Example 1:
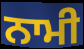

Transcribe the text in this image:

ਨਾਮੀ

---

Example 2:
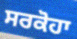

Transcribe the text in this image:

ਸਰਕੋਹਾ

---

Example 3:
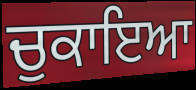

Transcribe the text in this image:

ਚੁਕਾਇਆ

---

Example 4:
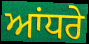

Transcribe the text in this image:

ਆਂਧਰੇ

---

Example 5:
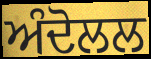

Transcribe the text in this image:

ਅੰਦੋਲਲ